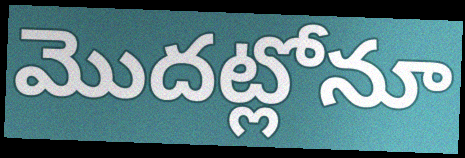
మొదట్లోనూ